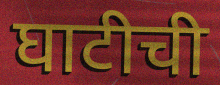
घाटीची